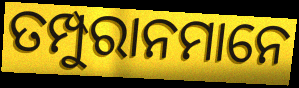
ତମ୍ପୁରାନମାନେ